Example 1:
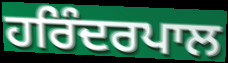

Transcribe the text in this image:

ਹਰਿੰਦਰਪਾਲ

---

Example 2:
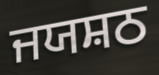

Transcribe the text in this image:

ਜਯਸ਼ਠ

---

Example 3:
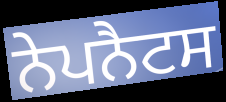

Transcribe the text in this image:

ਨੇਪਨੈਟਸ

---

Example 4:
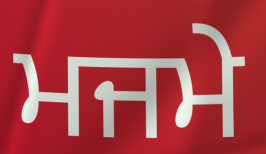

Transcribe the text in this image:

ਮਜਮੇ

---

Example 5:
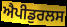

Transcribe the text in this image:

ਐਪੀਡੁਰਲਸ